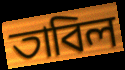
তাবিল